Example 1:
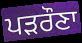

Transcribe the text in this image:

ਪੜਰੌਣਾ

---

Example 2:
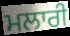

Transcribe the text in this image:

ਮਲਾਰੀ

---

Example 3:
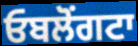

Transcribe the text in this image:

ਓਬਲੋਂਗਟਾ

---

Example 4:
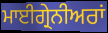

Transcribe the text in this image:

ਮਾਈਗ੍ਰੇਨੀਅਰਾਂ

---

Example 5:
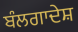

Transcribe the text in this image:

ਬੰਲਗਾਦੇਸ਼